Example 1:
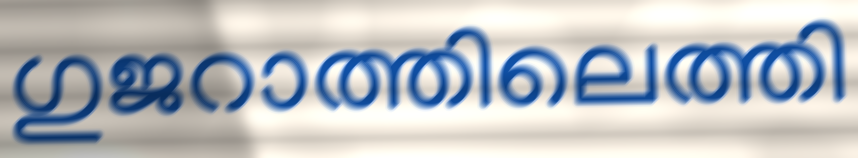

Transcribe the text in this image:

ഗുജറാത്തിലെത്തി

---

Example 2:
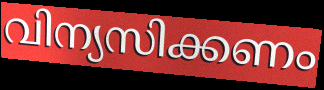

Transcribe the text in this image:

വിന്യസിക്കണം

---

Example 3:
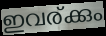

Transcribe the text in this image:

ഇവര്ക്കും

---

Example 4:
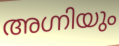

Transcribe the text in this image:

അഗ്നിയും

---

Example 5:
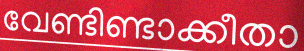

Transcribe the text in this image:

വേണ്ടിണ്ടാക്കീതാ